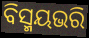
ବିସ୍ମୟଭରି